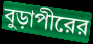
বুড়াপীরের